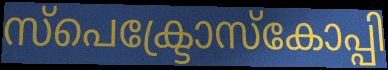
സ്പെക്ട്രോസ്കോപ്പി